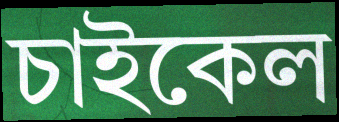
চাইকেল